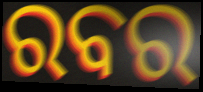
ରବର